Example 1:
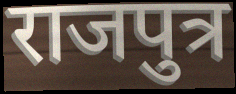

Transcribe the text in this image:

राजपुत्र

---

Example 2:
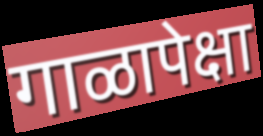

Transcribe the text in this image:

गाळापेक्षा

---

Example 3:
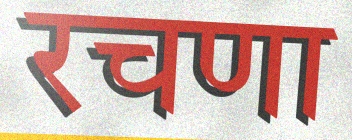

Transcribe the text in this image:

रचणा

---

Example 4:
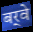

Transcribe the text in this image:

बर्वे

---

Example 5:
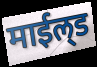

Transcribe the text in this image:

माईल्ड